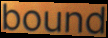
bound